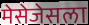
मेसेजेसला